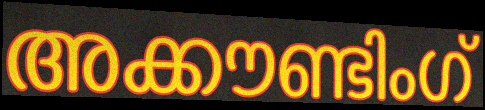
അക്കൗണ്ടിംഗ്